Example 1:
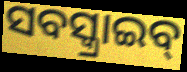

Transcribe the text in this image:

ସବସ୍କ୍ରାଇବ୍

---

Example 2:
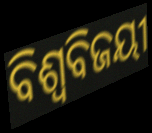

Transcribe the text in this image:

ବିଶ୍ବବିଜୟୀ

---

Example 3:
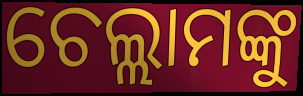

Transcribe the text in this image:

ଚେଲ୍ଲାମଙ୍କୁ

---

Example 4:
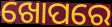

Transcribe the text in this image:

ଖୋପରେ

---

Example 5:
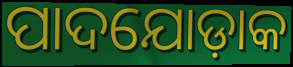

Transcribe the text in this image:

ପାଦଯୋଡ଼ାକ